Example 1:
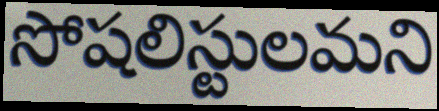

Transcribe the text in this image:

సోషలిస్టులమని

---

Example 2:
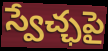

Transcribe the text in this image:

స్వేచ్ఛపై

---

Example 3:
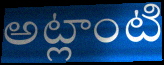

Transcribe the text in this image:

అట్లాంటి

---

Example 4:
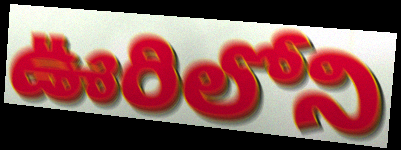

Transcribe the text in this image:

ఊరిలోని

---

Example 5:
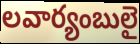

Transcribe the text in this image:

లవార్యంబులై